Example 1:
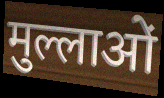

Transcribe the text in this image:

मुल्लाओं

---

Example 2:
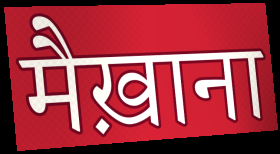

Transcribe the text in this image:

मैख़ाना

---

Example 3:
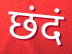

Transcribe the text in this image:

छंदं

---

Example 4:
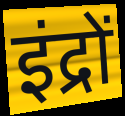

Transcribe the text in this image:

इंद्रों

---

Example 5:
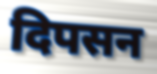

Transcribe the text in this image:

दिपसन